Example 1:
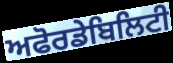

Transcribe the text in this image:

ਅਫੋਰਡੇਬਿਲਿਟੀ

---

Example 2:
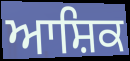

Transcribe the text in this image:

ਆਸ਼ਿਕ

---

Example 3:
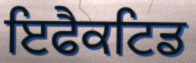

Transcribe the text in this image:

ਇਫੈਕਟਿਡ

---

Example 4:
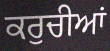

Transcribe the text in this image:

ਕਰੁਚੀਆਂ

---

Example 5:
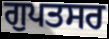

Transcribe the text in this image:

ਗੁਪਤਸਰ